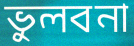
ভুলবনা